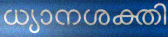
ധ്യാനശക്തി